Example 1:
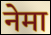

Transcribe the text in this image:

नेमा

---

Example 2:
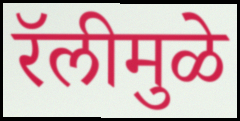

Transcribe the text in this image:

रॅलीमुळे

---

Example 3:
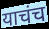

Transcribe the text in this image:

याचंच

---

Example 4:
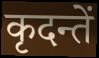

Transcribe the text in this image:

कृदन्तें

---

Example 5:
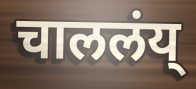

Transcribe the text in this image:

चाललंय्